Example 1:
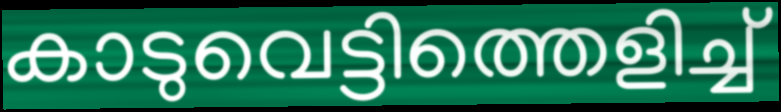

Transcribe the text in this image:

കാടുവെട്ടിത്തെളിച്ച്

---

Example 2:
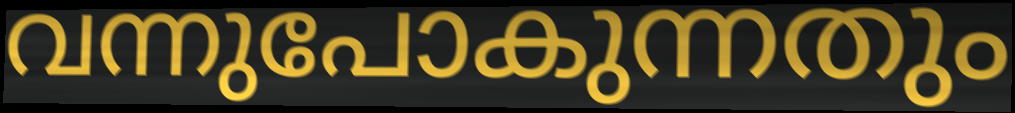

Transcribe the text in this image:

വന്നുപോകുന്നതും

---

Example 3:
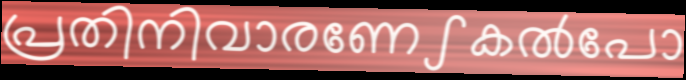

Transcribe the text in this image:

പ്രതിനിവാരണേഽകൽപോ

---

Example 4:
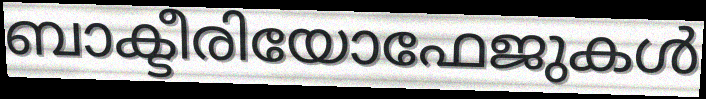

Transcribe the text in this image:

ബാക്ടീരിയോഫേജുകൾ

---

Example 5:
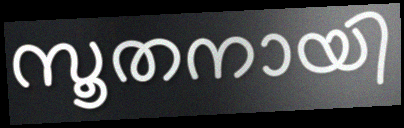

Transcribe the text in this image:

സൂതനായി